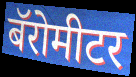
बॅरोमीटर